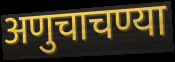
अणुचाचण्या